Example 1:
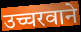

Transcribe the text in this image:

उच्चरवाने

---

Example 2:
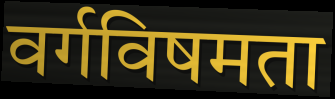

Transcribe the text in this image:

वर्गविषमता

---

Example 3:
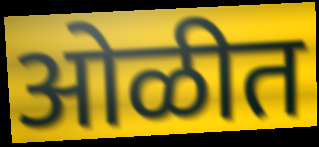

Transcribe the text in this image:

ओळीत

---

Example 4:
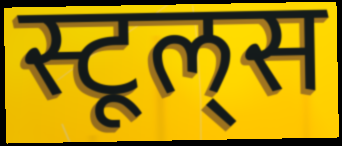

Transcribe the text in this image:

स्टूल्स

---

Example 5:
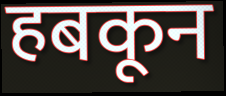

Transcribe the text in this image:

हबकून